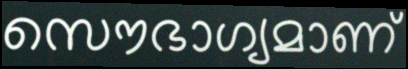
സൌഭാഗ്യമാണ്